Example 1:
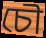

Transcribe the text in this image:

চৌ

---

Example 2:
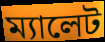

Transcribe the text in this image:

ম্যালেট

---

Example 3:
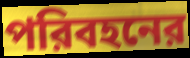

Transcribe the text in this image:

পরিবহনের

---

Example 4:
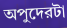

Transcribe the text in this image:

অপুদেরটা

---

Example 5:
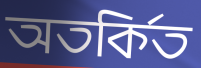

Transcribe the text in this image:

অতর্কিত